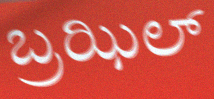
ಬ್ರಝಿಲ್